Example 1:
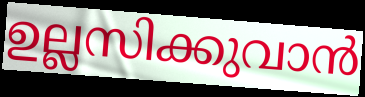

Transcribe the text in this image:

ഉല്ലസിക്കുവാൻ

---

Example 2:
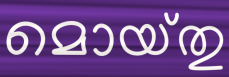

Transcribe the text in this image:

മൊയ്‌തു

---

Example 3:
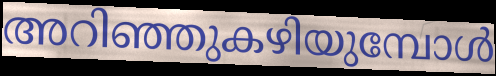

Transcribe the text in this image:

അറിഞ്ഞുകഴിയുമ്പോൾ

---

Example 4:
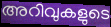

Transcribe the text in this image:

അറിവുകളുടെ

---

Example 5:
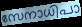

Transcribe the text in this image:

സേനാധിപാ